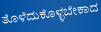
ತೊಳೆದುಕೊಳ್ಳಬೇಕಾದ